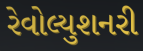
રેવોલ્યુશનરી